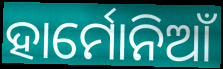
ହାର୍ମୋନିଆଁ